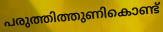
പരുത്തിത്തുണികൊണ്ട്